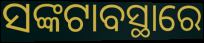
ସଙ୍କଟାବସ୍ଥାରେ